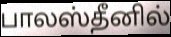
பாலஸ்தீனில்